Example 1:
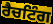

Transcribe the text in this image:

ਰੈਚਟਿੰਗ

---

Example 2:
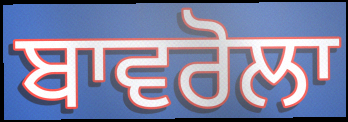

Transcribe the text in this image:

ਬਾਵਰੋਲਾ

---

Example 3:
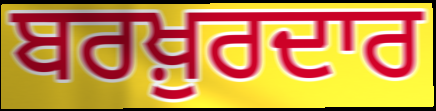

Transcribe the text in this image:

ਬਰਖ਼ੁਰਦਾਰ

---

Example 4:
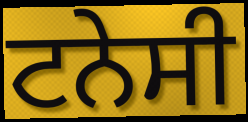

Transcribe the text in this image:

ਟਨੇਸੀ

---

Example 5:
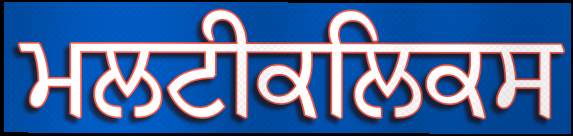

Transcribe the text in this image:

ਮਲਟੀਕਲਿਕਸ